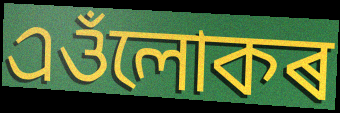
এওঁলোকৰ